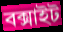
বক্সাইট